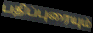
பதிப்புரையும்